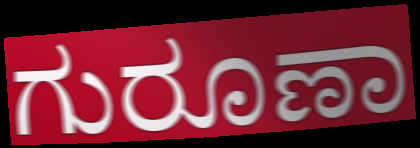
ಗುರೂಣಾ